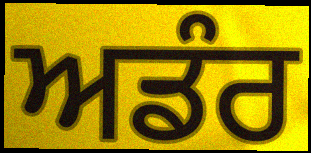
ਅਡੰਰ